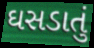
ઘસડાતું